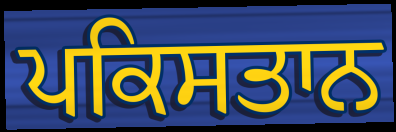
ਪਕਿਸਤਾਨ